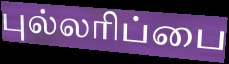
புல்லரிப்பை